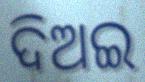
ଦିଅଇ